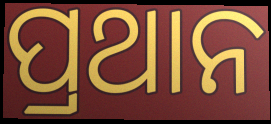
ପ୍ରଥାନ